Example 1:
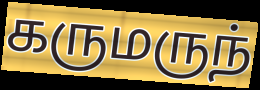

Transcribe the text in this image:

கருமருந்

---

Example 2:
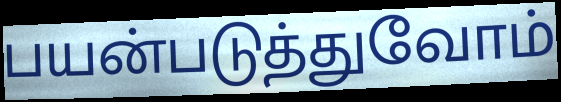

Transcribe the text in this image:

பயன்படுத்துவோம்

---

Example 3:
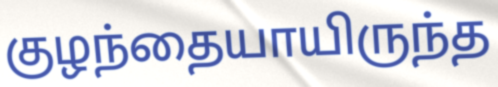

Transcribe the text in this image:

குழந்தையாயிருந்த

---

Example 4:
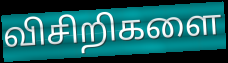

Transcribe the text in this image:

விசிறிகளை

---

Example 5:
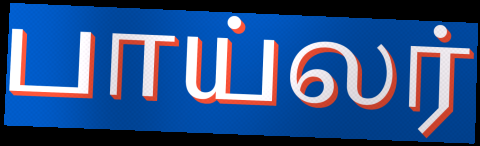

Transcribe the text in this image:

பாய்லர்